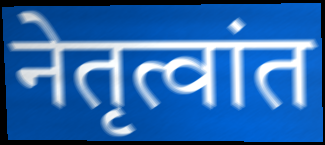
नेतृत्वांत